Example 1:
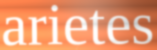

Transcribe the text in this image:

arietes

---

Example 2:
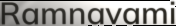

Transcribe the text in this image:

Ramnavami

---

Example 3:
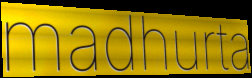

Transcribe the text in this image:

madhurta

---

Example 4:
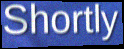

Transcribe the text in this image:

Shortly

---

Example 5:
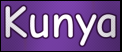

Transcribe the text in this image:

Kunya